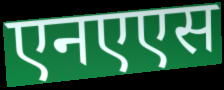
एनएएस